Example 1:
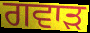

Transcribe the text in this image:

ਗਵਾੜ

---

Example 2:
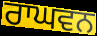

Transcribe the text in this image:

ਰਾਘਵਨ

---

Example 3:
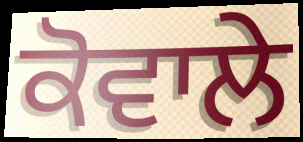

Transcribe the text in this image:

ਕੋਵਾਲੇ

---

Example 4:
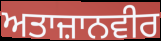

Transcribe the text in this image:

ਅਤਾਜ਼ਾਨਵੀਰ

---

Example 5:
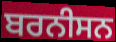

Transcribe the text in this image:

ਬਰਨੀਸਨ